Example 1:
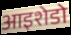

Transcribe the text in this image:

आइशेडो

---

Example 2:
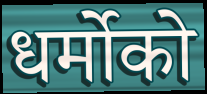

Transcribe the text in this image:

धर्मोको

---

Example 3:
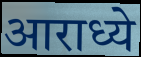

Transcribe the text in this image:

आराध्ये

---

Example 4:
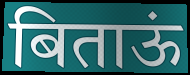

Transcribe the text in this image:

बिताऊं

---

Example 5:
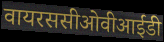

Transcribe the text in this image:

वायरससीओवीआईडी